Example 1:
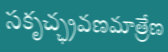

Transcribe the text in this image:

సకృచ్ఛ్రవణమాత్రేణ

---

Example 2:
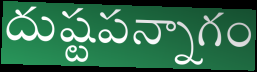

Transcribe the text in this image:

దుష్టపన్నాగం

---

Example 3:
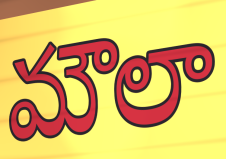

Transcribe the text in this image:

మౌలా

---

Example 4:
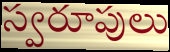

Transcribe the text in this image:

స్వరూపులు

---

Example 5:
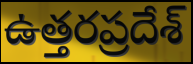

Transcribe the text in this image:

ఉత్తరప్రదేశ్